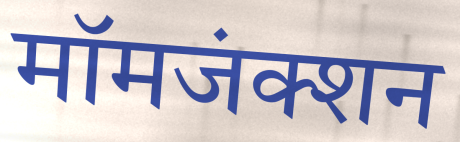
मॉमजंक्शन